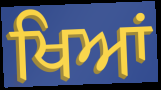
ਖਿਆਂ